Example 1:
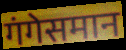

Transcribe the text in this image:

गंगेसमान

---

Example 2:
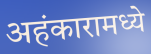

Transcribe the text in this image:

अहंकारामध्ये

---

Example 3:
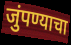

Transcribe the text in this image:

जुंपण्याचा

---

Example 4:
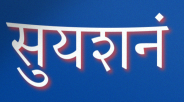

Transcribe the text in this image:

सुयशनं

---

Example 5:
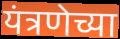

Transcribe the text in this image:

यंत्रणेच्या